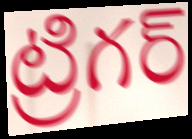
ట్రిగర్